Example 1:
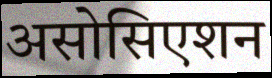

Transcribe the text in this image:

असोसिएशन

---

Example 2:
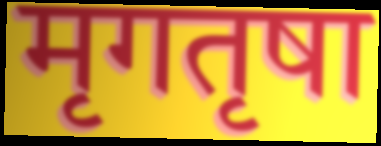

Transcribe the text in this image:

मृगतृषा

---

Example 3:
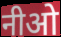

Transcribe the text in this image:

नीओ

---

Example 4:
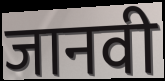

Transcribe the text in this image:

जानवी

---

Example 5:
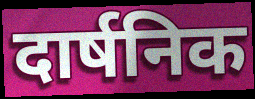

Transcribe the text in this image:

दार्षनिक